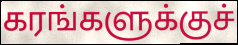
கரங்களுக்குச்